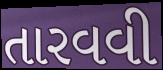
તારવવી